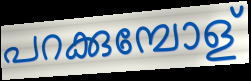
പറക്കുമ്പോള്